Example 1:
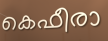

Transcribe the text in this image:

കെഫീരാ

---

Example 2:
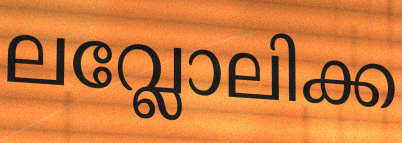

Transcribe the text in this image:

ലവ്ലോലിക്ക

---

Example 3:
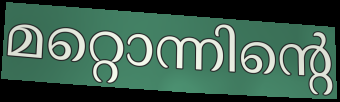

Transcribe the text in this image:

മറ്റൊന്നിന്റെ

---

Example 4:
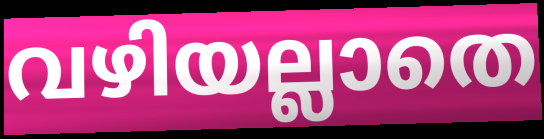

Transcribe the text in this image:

വഴിയല്ലാതെ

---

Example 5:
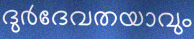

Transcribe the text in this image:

ദുർദേവതയാവും